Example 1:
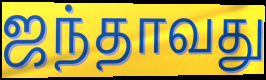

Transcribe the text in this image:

ஜந்தாவது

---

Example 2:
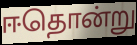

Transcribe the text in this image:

ஈதொன்று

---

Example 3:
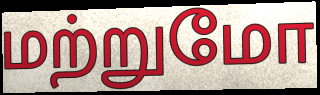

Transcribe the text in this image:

மற்றுமோ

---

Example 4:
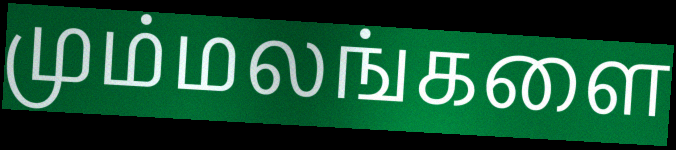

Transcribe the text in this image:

மும்மலங்களை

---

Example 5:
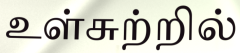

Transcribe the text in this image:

உள்சுற்றில்